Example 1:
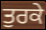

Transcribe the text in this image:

ਤੁਰਕੇ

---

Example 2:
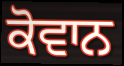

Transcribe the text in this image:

ਕੋਵਾਨ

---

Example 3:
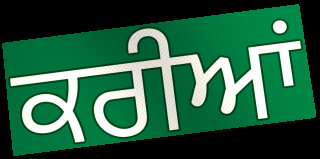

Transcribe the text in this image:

ਕਰੀਆਂ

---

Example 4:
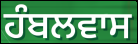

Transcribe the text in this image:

ਹੰਬਲਵਾਸ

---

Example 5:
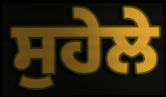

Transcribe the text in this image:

ਸੁਹੇਲੇ